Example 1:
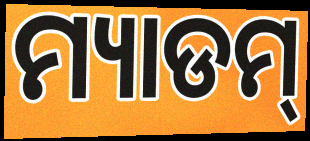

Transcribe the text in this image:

ମ୍ୟାଡମ୍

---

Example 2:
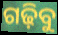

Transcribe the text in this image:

ଗଢ଼ିବୁ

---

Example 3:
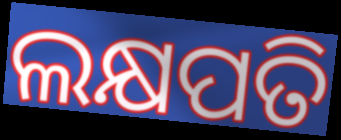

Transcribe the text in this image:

ଲକ୍ଷପତି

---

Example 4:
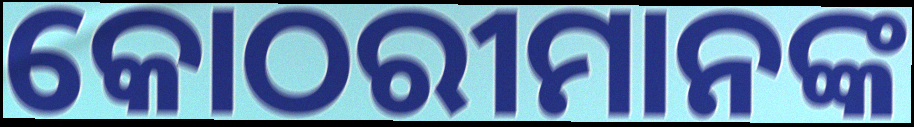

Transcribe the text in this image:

କୋଠରୀମାନଙ୍କ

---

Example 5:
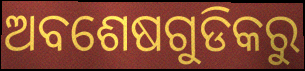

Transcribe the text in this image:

ଅବଶେଷଗୁଡିକରୁ